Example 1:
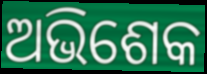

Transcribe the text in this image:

ଅଭିଶେକ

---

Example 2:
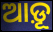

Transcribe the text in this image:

ଆଡ଼ୂ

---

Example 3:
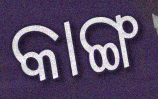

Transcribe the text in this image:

କାଙ୍ଗ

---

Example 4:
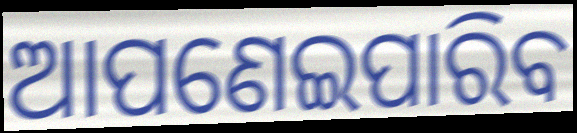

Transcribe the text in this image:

ଆପଣେଇପାରିବ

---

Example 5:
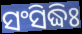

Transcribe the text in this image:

ସଂସିଦ୍ଧିଃ